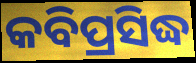
କବିପ୍ରସିଦ୍ଧ